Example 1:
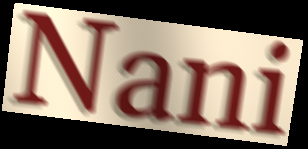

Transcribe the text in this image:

Nani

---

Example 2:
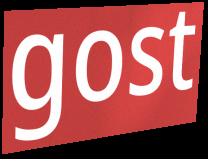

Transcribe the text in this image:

gost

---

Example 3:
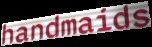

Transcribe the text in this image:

handmaids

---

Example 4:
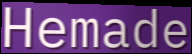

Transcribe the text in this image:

Hemade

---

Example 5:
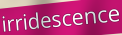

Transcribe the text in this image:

irridescence